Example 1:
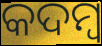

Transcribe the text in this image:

କଦମ୍ୱ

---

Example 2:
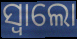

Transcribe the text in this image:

ସ୍ବାଲୋ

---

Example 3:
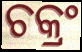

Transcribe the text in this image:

ଚକ୍ରଂ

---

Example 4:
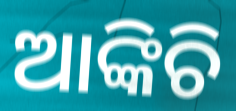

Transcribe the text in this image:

ଆଙ୍କିଚି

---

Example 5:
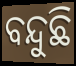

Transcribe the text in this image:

ବନ୍ଦୁଛି